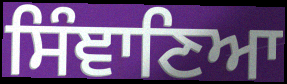
ਸਿੰਞਾਣਿਆ